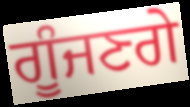
ਗੂੰਜਣਗੇ